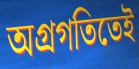
অগ্রগতিতেই